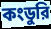
কংডুরি